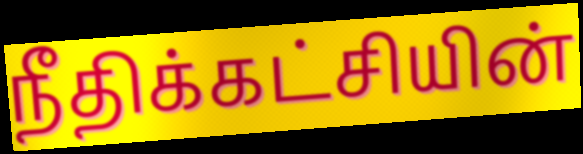
நீதிக்கட்சியின்